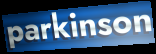
parkinson